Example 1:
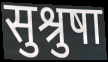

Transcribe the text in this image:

सुश्रुषा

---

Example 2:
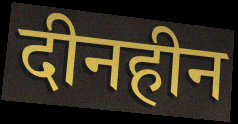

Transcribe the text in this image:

दीनहीन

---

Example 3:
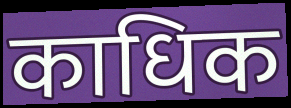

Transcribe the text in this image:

काधिक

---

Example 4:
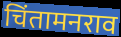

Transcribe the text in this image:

चिंतामनराव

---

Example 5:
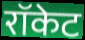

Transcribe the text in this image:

रॉकेट